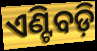
ଏଣ୍ଟିବଡ଼ି